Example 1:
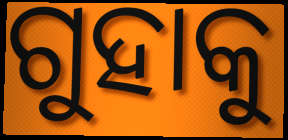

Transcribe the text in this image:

ଗୁହାକୁ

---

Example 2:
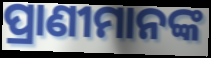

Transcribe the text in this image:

ପ୍ରାଣୀମାନଙ୍କ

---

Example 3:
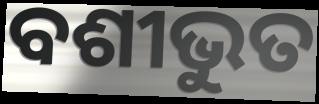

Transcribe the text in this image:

ବଶୀଭୁତ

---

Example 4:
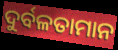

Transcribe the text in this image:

ଦୁର୍ବଳତାମାନ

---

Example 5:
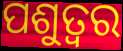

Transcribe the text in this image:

ପଶୁତ୍ୱର